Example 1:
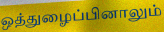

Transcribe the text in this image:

ஒத்துழைப்பினாலும்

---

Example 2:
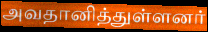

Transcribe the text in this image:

அவதானித்துள்ளனர்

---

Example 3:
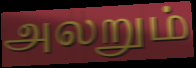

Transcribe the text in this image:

அலறும்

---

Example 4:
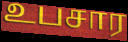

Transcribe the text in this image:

உபசார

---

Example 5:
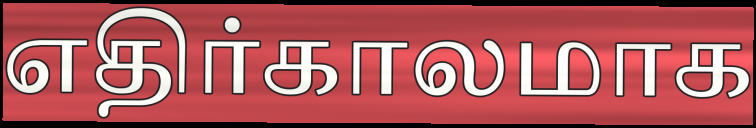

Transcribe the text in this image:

எதிர்காலமாக